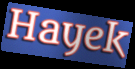
Hayek